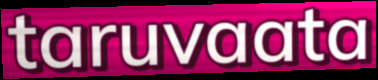
taruvaata